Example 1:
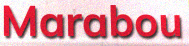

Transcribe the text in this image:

Marabou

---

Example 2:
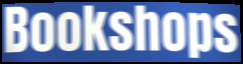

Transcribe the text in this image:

Bookshops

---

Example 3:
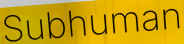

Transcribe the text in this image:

Subhuman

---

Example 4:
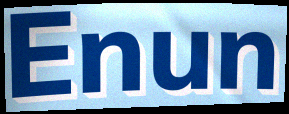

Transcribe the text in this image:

Enun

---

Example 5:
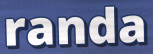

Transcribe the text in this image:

randa